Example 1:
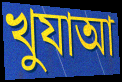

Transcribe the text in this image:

খুযাআ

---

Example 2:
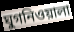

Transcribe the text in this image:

ঘুগনিওয়ালা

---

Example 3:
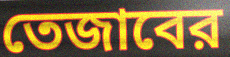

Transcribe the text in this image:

তেজাবের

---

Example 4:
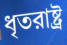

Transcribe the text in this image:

ধৃতরাষ্ট্র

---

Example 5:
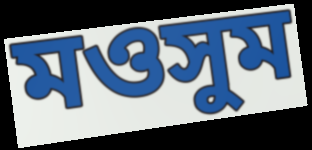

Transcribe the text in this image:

মওসুম